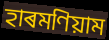
হাৰমণিয়াম